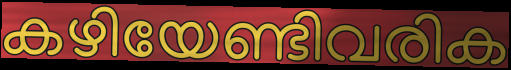
കഴിയേണ്ടിവരിക